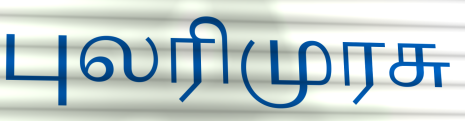
புலரிமுரசு